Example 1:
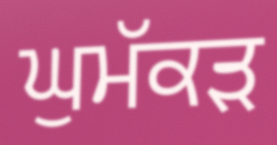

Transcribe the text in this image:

ਘੁਮੱਕੜ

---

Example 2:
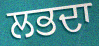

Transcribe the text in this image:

ਲਭਦਾ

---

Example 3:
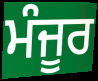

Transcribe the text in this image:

ਮੰਜੂਰ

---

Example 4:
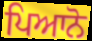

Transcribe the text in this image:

ਪਿਆਨੋ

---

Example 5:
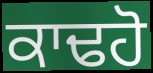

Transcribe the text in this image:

ਕਾਢਹੋ